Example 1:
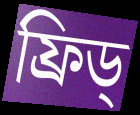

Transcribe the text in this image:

ফ্ৰিড্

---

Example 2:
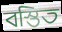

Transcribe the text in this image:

বস্তিত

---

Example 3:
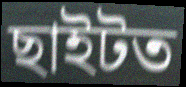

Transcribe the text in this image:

ছাইটত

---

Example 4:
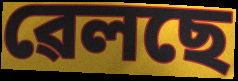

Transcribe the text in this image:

ৱেলছে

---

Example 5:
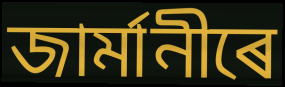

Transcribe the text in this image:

জাৰ্মানীৰে